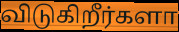
விடுகிறீர்களா